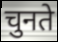
चुनते